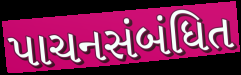
પાચનસંબંધિત